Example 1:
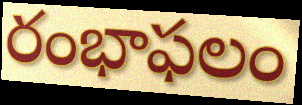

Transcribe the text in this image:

రంభాఫలం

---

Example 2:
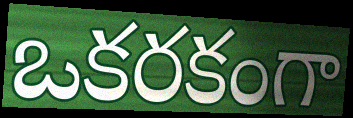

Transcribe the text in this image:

ఒకరకంగా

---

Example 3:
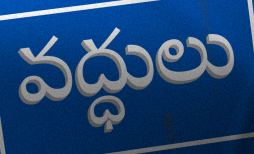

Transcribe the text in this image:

వద్ధులు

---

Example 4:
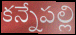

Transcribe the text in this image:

కన్నేపల్లి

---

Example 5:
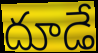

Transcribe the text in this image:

దూడే